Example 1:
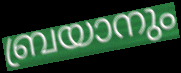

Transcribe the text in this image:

ബ്രയാനും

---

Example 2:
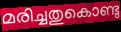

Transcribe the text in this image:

മരിച്ചതുകൊണ്ടു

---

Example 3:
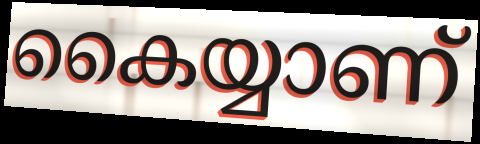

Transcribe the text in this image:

കൈയ്യാണ്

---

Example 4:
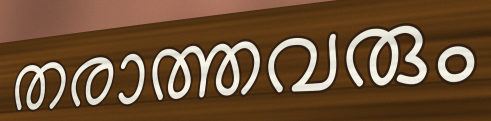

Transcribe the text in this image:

തരാത്തവരും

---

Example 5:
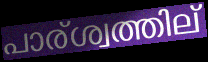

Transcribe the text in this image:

പാര്ശ്വത്തില്